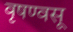
वृषण्वसू